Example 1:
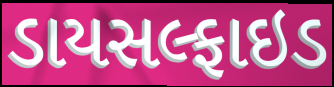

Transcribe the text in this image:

ડાયસલ્ફાઇડ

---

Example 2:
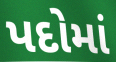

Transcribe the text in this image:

પદોમાં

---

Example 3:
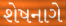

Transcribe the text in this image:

શેષનાગે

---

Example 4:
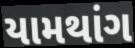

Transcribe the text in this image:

યામથાંગ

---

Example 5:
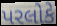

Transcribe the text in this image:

પરલોકે